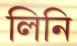
লিনি